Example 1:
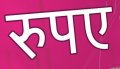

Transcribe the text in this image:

रुपए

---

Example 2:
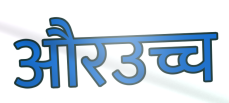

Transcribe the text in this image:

औरउच्च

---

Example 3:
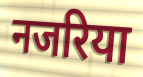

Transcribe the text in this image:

नजरिया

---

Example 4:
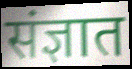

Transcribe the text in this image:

संज्ञात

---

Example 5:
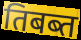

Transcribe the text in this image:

तिबब्त